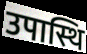
उपास्थि